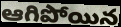
ఆగిపోయిన